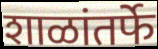
शाळांतर्फे